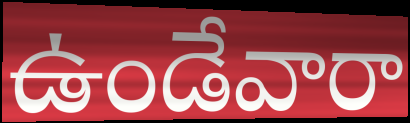
ఉండేవారా